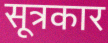
सूत्रकार